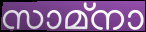
സാമ്നാ